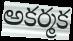
అకర్మక